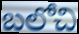
బలోచి